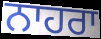
ਨਾਹਰਾ